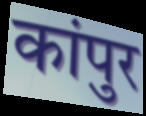
कांपुर